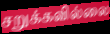
சறுக்கவில்லை